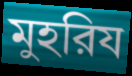
মুহরিয